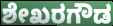
ಶೇಖರಗೌಡ